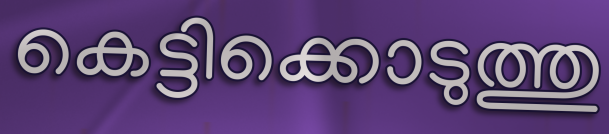
കെട്ടിക്കൊടുത്തു